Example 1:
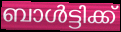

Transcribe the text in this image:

ബാൾട്ടിക്ക്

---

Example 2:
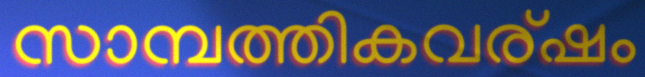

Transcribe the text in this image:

സാമ്പത്തികവര്ഷം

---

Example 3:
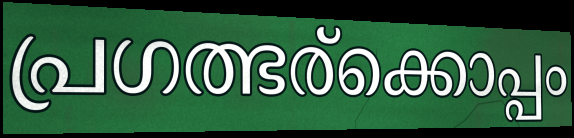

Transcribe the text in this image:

പ്രഗത്ഭര്ക്കൊപ്പം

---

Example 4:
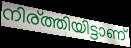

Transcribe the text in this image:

നിര്ത്തിയിട്ടാണ്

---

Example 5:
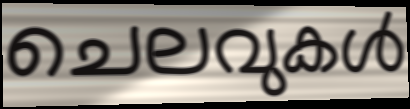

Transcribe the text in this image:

ചെലവുകൾ